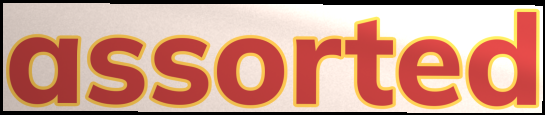
assorted